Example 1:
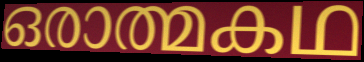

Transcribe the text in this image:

ഒരാത്മകഥ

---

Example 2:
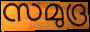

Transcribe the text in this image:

സമുദ്ര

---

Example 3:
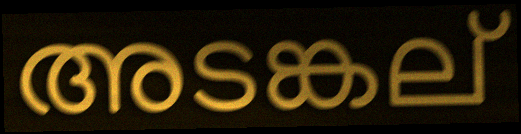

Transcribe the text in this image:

അടങ്കല്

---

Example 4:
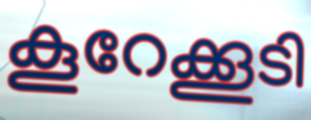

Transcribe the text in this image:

കൂറേക്കൂടി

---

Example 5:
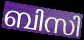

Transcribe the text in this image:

ബിസി